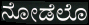
ನೋಡೆಲೊ